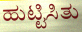
ಹುಟ್ಟಿಸಿತು